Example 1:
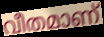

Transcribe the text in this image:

വീതമാണ്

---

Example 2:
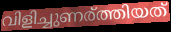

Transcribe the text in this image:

വിളിച്ചുണര്ത്തിയത്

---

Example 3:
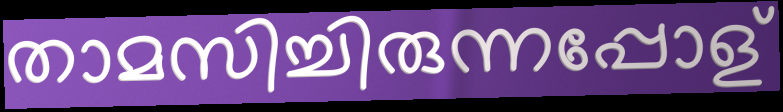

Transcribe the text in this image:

താമസിച്ചിരുന്നപ്പോള്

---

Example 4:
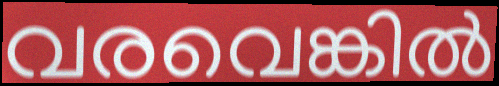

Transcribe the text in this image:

വരവെങ്കിൽ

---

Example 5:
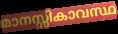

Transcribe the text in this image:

മാനസ്സികാവസ്ഥ